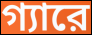
গ্যারে